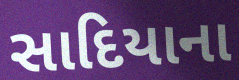
સાદિયાના